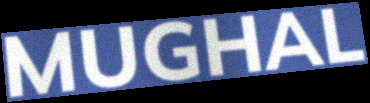
MUGHAL